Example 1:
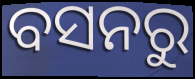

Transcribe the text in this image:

ବସନରୁ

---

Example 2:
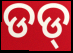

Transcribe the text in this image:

ଡଡ୍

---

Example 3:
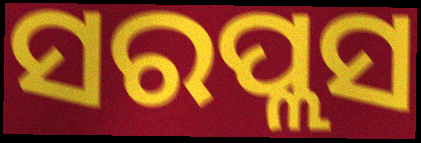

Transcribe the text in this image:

ସରପ୍ଲସ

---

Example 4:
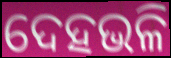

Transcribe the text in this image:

ଦେହଭଳି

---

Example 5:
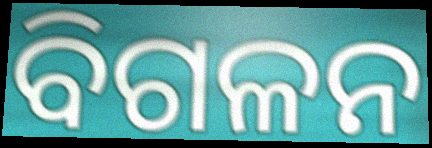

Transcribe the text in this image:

ବିଗଳନ